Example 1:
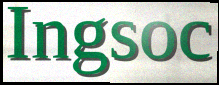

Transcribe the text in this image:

Ingsoc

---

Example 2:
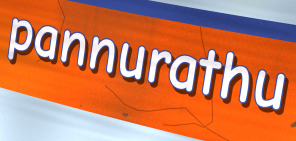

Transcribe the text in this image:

pannurathu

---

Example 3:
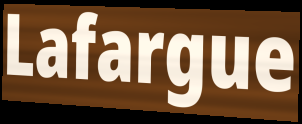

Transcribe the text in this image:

Lafargue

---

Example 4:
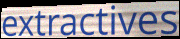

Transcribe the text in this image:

extractives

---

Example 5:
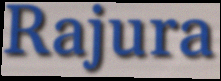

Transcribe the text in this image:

Rajura